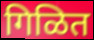
गिळित